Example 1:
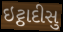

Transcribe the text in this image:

ઇટ્ઠાદીસુ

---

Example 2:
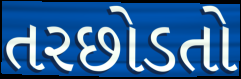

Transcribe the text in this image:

તરછોડતો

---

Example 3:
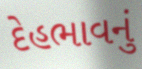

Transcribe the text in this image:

દેહભાવનું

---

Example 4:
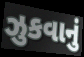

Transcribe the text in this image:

ઝુકવાનું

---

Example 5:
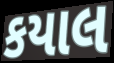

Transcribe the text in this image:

કયાલ